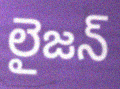
లైజన్